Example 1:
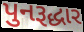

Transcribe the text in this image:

પુનરૂદ્ધાર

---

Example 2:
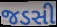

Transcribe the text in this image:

જડસી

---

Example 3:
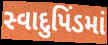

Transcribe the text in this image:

સ્વાદુપિંડમાં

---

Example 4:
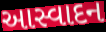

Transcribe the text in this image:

આસ્વાદન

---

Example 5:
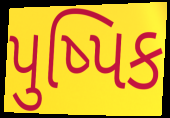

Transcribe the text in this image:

પુષ્પિક